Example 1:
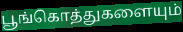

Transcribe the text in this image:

பூங்கொத்துகளையும்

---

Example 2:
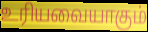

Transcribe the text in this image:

உரியவையாகும்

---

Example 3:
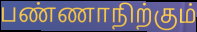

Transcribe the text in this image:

பண்ணாநிற்கும்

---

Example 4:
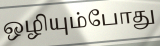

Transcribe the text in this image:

ஒழியும்போது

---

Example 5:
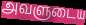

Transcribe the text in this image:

அவளுடைய